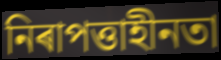
নিৰাপত্তাহীনতা